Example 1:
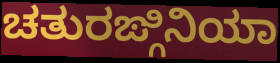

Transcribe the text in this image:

ಚತುರಙ್ಗಿನಿಯಾ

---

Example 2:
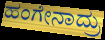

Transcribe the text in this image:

ಹಂಗೇನಾದ್ರು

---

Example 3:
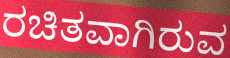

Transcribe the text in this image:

ರಚಿತವಾಗಿರುವ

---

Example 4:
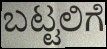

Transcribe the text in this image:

ಬಟ್ಟಲಿಗೆ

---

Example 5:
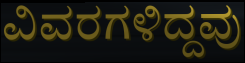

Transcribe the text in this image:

ವಿವರಗಳಿದ್ದವು